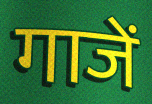
गाजें